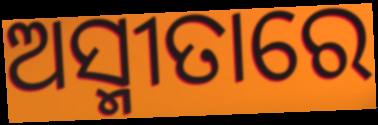
ଅସ୍ମୀତାରେ